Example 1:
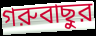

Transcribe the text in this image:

গরুবাছুর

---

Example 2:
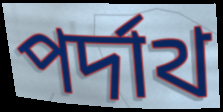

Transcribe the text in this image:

পর্দাথ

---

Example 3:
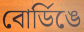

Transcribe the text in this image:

বোর্ডিঙে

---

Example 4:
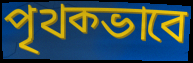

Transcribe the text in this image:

পৃথক্ভাবে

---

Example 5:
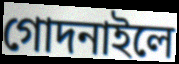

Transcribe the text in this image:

গোদনাইলে